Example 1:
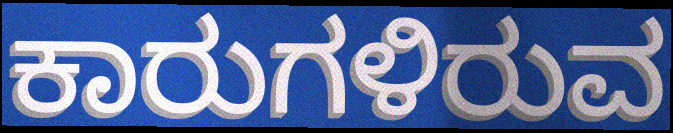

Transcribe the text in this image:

ಕಾರುಗಳಿರುವ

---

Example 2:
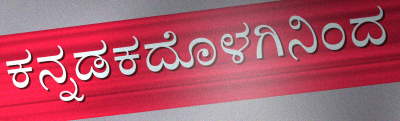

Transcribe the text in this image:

ಕನ್ನಡಕದೊಳಗಿನಿಂದ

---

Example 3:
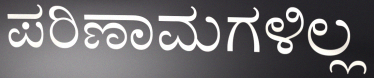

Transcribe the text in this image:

ಪರಿಣಾಮಗಳಿಲ್ಲ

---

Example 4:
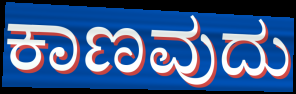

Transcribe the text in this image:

ಕಾಣವುದು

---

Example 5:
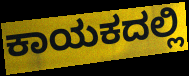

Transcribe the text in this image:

ಕಾಯಕದಲ್ಲಿ